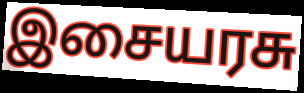
இசையரசு